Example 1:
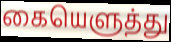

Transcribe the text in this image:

கையெளுத்து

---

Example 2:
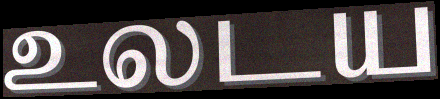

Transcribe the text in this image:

உலடய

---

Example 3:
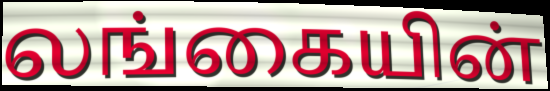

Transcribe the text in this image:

லங்கையின்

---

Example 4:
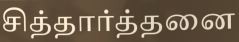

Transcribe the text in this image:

சித்தார்த்தனை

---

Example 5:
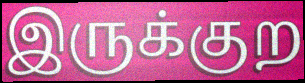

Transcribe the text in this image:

இருக்குற